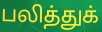
பலித்துக்